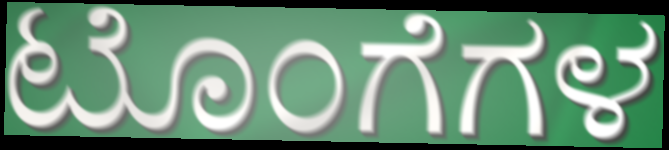
ಟೊಂಗೆಗಳ